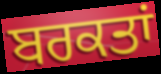
ਬਰਕਤਾਂ